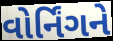
વોર્નિંગને